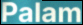
Palam